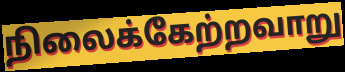
நிலைக்கேற்றவாறு